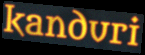
kanduri